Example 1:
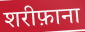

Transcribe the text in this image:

शरीफ़ाना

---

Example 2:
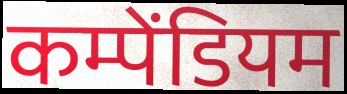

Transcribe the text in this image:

कम्पेंडियम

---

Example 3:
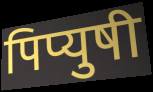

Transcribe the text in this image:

पिप्युषी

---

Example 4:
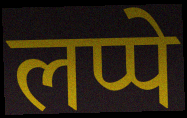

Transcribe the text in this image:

लप्पे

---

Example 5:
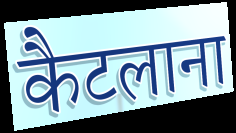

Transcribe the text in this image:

कैटलाना